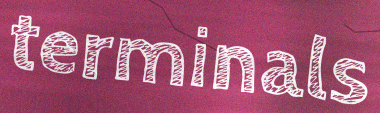
terminals